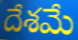
దేశమే